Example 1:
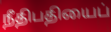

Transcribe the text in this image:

நீதிபதியைப்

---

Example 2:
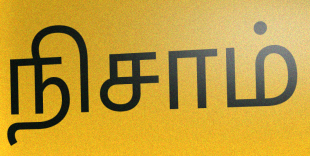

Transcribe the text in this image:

நிசாம்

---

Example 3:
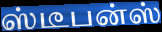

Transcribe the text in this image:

ஸ்டீபன்ஸ்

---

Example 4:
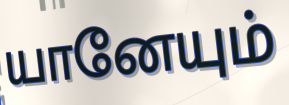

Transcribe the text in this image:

யானேயும்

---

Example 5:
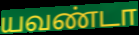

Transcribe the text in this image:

யவண்டா